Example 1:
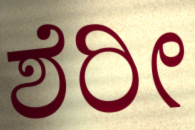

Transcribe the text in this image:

ಶೆರೀ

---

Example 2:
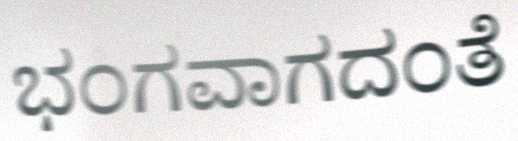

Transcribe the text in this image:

ಭಂಗವಾಗದಂತೆ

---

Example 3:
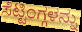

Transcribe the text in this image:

ಸೆಟ್ಟಿಂಗ್ಗಳನ್ನು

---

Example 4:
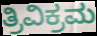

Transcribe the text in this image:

ತ್ರಿವಿಕ್ರಮ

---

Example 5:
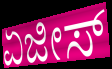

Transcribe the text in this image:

ಏಜೀಸ್